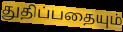
துதிப்பதையும்